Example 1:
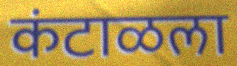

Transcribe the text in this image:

कंटाळला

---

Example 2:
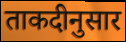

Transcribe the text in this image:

ताकदीनुसार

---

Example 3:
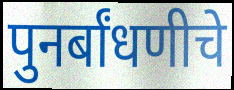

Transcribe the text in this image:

पुनर्बांधणीचे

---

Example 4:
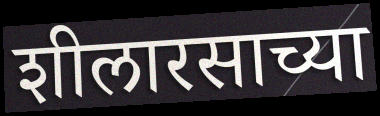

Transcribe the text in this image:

शीलारसाच्या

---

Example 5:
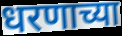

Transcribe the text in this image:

धरणाच्या